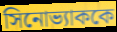
সিনোভ্যাককে